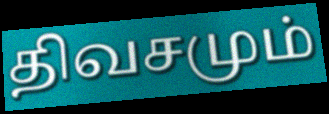
திவசமும்